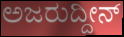
ಅಜರುದ್ದೀನ್